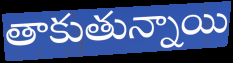
తాకుతున్నాయి